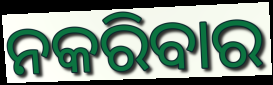
ନକରିବାର